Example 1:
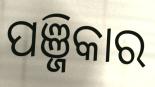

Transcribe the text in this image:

ପଞ୍ଜିକାର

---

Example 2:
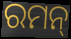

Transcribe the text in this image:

ରମନ୍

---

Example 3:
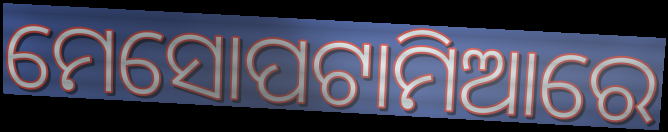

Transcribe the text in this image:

ମେସୋପଟାମିଆରେ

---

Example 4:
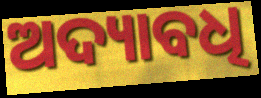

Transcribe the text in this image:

ଅଦ୍ୟାବଧି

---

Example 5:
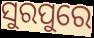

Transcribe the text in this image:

ସୁରପୁରେ